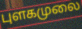
புளகமுலை